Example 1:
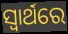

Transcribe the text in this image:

ସ୍ଵାର୍ଥରେ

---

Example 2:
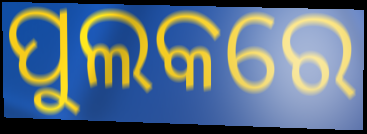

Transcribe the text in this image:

ପୁଲକରେ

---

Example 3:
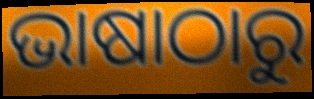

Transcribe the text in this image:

ଭାଷାଠାରୁ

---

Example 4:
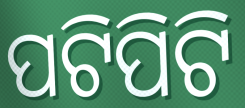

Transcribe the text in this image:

ପଟିପିଟି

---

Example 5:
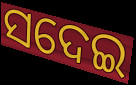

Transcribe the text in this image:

ସଦେଇ